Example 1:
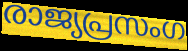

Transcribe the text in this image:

രാജ്യപ്രസംഗ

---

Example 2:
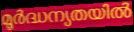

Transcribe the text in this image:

മൂർദ്ധന്യതയിൽ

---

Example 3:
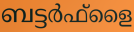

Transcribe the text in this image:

ബട്ടർഫ്ളൈ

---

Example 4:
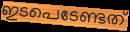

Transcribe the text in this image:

ഇടപെടേണ്ടത്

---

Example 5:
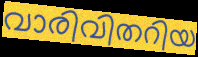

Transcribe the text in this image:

വാരിവിതറിയ